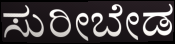
ಸುರೀಬೇಡ